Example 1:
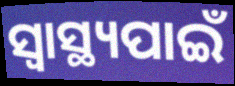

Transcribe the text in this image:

ସ୍ଵାସ୍ଥ୍ୟପାଇଁ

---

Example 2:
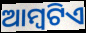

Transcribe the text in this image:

ଆମ୍ବଟିଏ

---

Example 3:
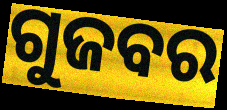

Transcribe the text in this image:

ଗୁଜବର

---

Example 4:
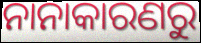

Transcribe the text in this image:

ନାନାକାରଣରୁ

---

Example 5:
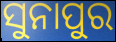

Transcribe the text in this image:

ସୁନାପୁର